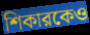
শিকারকেও